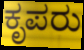
ಕೃಪರು